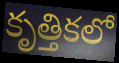
కృత్తికలో